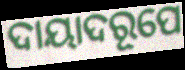
ଦାୟାଦରୂପେ